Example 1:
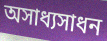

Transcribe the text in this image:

অসাধ্যসাধন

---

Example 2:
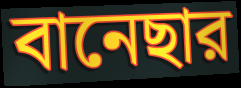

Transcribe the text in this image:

বানেছার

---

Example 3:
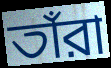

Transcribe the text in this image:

তাঁরা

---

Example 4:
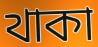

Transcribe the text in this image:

থাকা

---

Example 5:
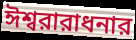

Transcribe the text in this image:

ঈশ্বরারাধনার